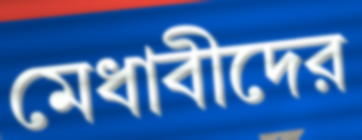
মেধাবীদের